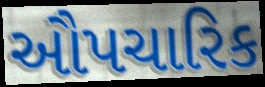
ઔપચારિક